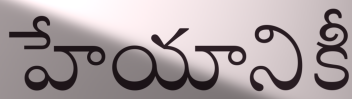
హేయానికీ